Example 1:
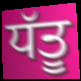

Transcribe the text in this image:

ਧੱਤੂ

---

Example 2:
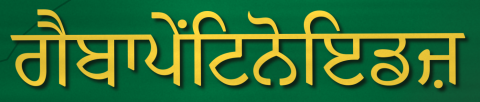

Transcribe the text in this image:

ਗੈਬਾਪੇਂਟਿਨੋਇਡਜ਼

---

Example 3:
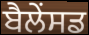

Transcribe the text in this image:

ਬੈਲੇਂਸਡ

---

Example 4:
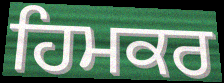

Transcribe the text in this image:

ਹਿਮਕਰ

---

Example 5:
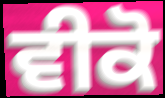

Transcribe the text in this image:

ਵੀਕੋ